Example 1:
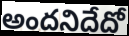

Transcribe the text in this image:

అందనిదేదో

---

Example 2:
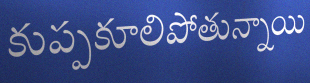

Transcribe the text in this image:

కుప్పకూలిపోతున్నాయి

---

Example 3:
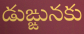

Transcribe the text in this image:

డుఙ్ఙునకు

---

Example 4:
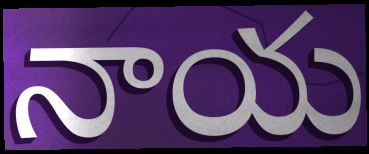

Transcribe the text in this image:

నాయ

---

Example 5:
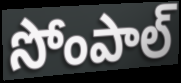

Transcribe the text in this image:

సోంపాల్